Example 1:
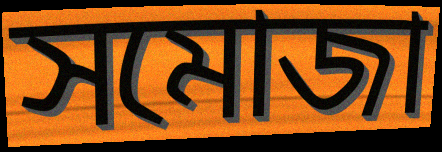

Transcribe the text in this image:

সমোজা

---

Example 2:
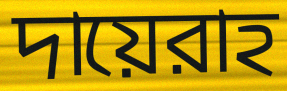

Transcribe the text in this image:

দায়েরাহ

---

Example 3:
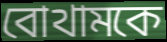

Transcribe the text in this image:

বোথামকে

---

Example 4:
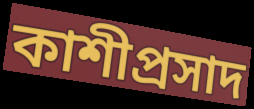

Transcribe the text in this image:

কাশীপ্রসাদ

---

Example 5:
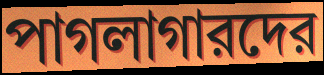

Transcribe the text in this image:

পাগলাগারদের